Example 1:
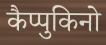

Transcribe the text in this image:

कैप्पुकिनो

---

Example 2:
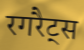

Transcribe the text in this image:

रगरैट्स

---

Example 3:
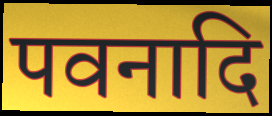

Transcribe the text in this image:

पवनादि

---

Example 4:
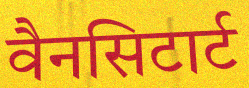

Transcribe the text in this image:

वैनसिटार्ट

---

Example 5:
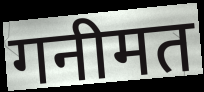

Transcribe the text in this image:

गनीमत